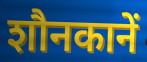
शौनकानें